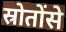
स्रोतोंसे